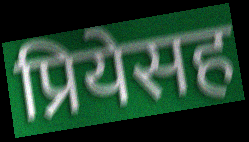
प्रियेसह